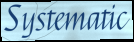
Systematic